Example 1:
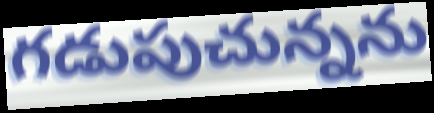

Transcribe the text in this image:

గడుపుచున్నను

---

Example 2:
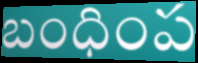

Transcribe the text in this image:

బంధింప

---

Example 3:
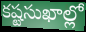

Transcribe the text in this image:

కష్టసుఖాల్లో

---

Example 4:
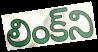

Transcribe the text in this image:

లింక్‌ని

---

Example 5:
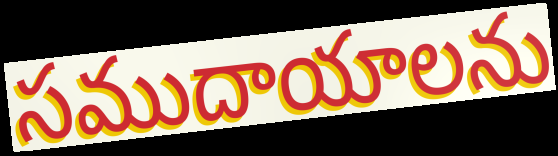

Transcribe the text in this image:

సముదాయాలను